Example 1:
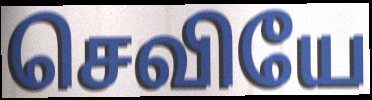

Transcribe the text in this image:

செவியே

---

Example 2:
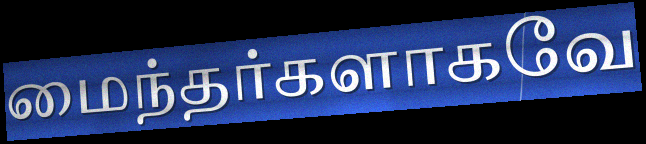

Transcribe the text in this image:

மைந்தர்களாகவே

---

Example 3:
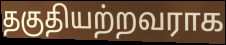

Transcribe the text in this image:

தகுதியற்றவராக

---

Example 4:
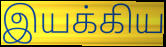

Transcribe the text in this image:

இயக்கிய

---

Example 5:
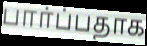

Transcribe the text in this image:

பார்ப்பதாக